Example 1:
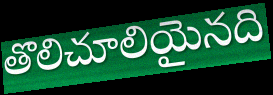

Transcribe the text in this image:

తొలిచూలియైనది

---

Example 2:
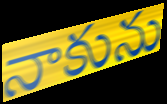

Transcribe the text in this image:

నాకును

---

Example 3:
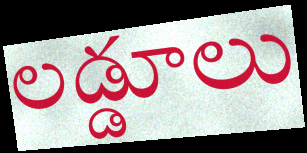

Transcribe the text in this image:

లడ్డూలు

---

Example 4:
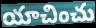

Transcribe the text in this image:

యాచించు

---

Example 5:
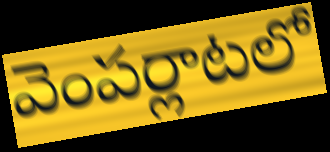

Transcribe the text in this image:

వెంపర్లాటలో